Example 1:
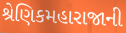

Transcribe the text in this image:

શ્રેણિકમહારાજાની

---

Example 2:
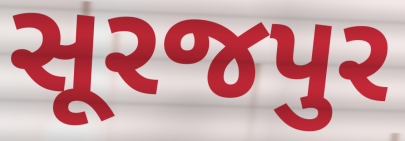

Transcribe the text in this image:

સૂરજપુર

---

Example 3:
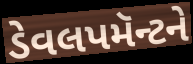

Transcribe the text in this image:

ડેવલપમૅન્ટને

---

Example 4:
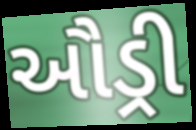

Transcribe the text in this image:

ઔડ્રી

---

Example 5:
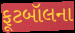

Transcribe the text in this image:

ફૂટબૉલના